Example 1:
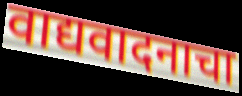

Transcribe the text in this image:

वाद्यवादनाचा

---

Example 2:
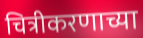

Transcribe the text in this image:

चित्रीकरणाच्या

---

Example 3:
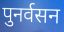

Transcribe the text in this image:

पुनर्वसन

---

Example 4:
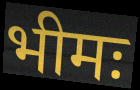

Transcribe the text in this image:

भीमः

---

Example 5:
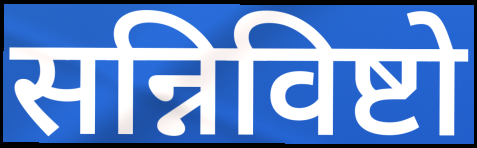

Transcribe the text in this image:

सन्निविष्टो